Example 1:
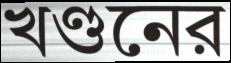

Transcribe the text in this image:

খণ্ডনের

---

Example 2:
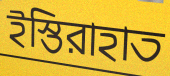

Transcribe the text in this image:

ইস্তিরাহাত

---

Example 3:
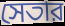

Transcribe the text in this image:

সেতার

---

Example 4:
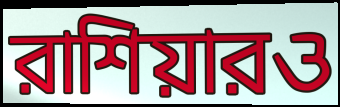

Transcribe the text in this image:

রাশিয়ারও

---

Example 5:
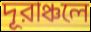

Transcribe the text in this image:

দূরাঞ্চলে